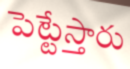
పెట్టేస్తారు